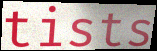
tists